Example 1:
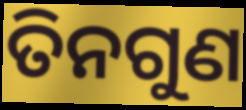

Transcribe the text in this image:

ତିନଗୁଣ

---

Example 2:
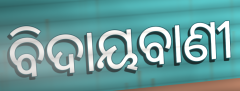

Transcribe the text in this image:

ବିଦାୟବାଣୀ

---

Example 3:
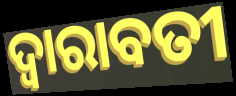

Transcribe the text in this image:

ଦ୍ଵାରାବତୀ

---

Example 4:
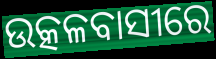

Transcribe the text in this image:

ଉତ୍କଳବାସୀରେ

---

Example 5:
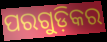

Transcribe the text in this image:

ପରଗୁଡ଼ିକର